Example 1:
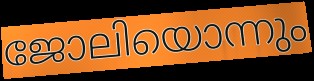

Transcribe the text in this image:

ജോലിയൊന്നും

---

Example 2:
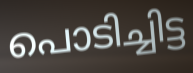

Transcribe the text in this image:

പൊടിച്ചിട്ട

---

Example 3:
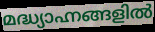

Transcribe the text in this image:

മദ്ധ്യാഹ്നങ്ങളിൽ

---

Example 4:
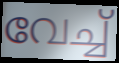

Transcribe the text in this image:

വേച്ച്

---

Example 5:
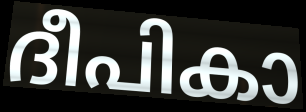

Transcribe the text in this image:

ദീപികാ